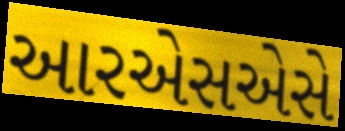
આરએસએસે